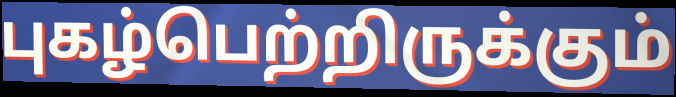
புகழ்பெற்றிருக்கும்